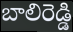
బాలిరెడ్డి